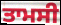
ਤਾਮਸੀ